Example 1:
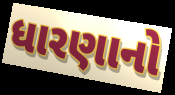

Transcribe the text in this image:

ધારણાનો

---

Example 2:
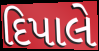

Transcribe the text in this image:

દિપાલે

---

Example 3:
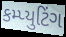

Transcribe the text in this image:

કમ્પ્યુટિંગ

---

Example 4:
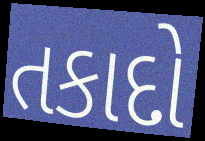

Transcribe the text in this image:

તકાદો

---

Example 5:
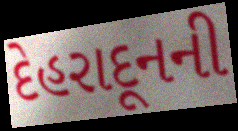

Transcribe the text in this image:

દેહરાદૂનની